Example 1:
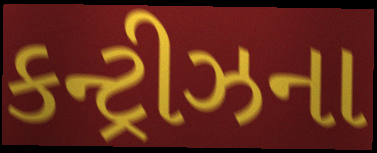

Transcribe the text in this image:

કન્ટ્રીઝના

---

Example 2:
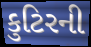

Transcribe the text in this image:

કુટિરની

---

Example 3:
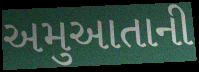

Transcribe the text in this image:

અમુઆતાની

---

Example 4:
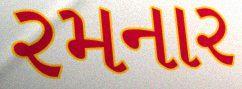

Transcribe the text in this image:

રમનાર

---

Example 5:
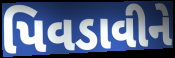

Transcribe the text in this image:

પિવડાવીને